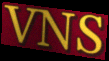
VNS